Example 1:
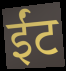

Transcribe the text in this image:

ईंट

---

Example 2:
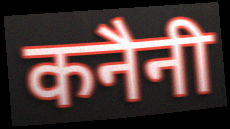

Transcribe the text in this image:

कनैनी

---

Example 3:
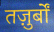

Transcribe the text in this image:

तज़ुर्बों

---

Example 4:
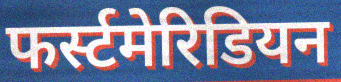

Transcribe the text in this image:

फर्स्टमेरिडियन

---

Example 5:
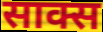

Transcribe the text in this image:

साक्स